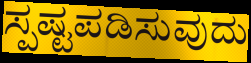
ಸ್ಪಷ್ಟಪಡಿಸುವುದು